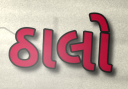
ઠાલો